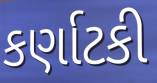
કર્ણાટકી